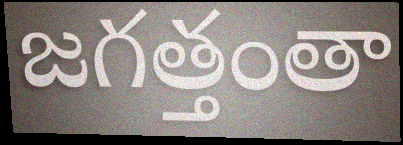
జగత్తంతా